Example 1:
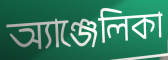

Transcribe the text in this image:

অ্যাঞ্জেলিকা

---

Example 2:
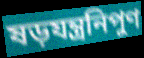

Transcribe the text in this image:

ষড়যন্ত্রনিপুণ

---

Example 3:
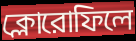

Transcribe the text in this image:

ক্লোরোফিলে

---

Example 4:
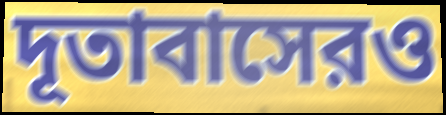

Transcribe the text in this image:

দূতাবাসেরও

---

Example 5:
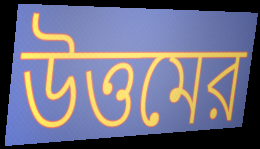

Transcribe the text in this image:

উত্তমের